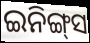
ଇନିଙ୍ଗ୍‌ସ